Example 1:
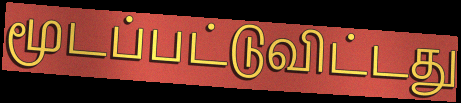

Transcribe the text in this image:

மூடப்பட்டுவிட்டது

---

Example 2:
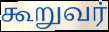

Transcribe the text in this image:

கூறுவர்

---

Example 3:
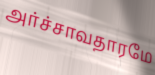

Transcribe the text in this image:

அர்ச்சாவதாரமே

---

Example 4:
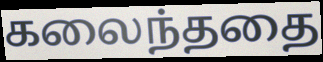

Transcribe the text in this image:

கலைந்ததை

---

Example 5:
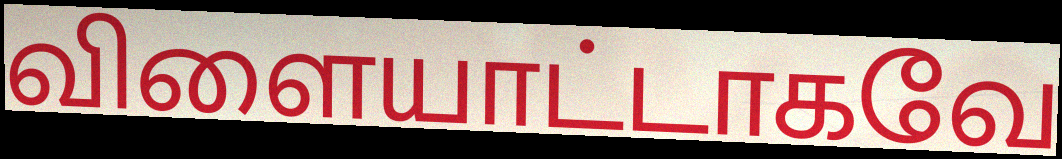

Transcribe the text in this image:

விளையாட்டாகவே